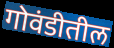
गोवंडीतील